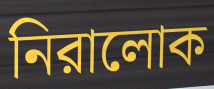
নিরালোক